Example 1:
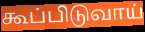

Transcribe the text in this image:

கூப்பிடுவாய்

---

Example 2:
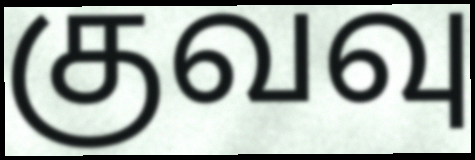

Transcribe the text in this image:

குவவு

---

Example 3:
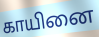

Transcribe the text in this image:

காயினை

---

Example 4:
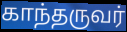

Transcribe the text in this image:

காந்தருவர்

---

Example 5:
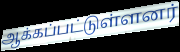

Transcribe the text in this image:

ஆக்கப்பட்டுள்ளனர்